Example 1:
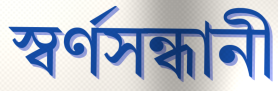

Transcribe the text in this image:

স্বর্ণসন্ধানী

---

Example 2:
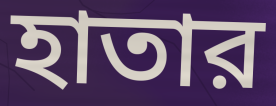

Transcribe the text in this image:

হাতার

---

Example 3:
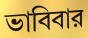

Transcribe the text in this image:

ভাবিবার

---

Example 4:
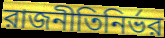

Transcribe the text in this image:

রাজনীতিনির্ভর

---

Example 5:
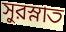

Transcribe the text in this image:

সুরস্নাত